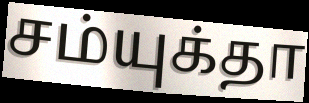
சம்யுக்தா